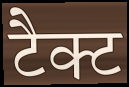
टैक्ट